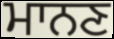
ਮਾਨਣ